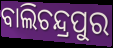
ବାଲିଚନ୍ଦ୍ରପୁର